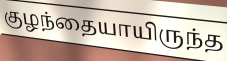
குழந்தையாயிருந்த